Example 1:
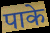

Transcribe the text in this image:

पाके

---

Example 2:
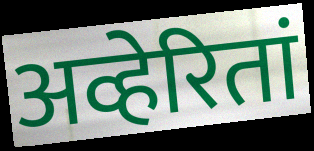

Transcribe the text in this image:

अव्हेरितां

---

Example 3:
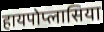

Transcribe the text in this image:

हायपोप्लासिया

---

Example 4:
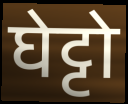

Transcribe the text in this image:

घेट्टो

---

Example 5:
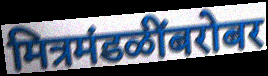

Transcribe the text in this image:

मित्रमंडळींबरोबर